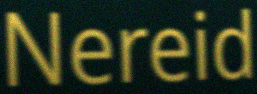
Nereid